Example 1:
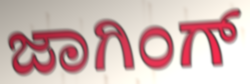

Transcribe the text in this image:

ಜಾಗಿಂಗ್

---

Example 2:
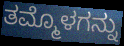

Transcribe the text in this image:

ತಮ್ಮೊಳಗನ್ನು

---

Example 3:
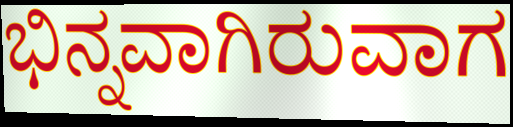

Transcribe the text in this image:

ಭಿನ್ನವಾಗಿರುವಾಗ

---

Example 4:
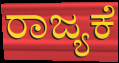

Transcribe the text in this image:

ರಾಜ್ಯಕೆ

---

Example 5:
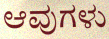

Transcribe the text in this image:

ಆವುಗಳು